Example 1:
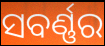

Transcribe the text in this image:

ସବର୍ଣ୍ଣର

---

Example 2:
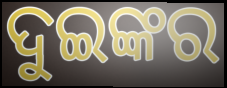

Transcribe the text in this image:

ଦୁଇଙ୍କର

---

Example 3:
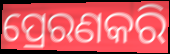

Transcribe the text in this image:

ପ୍ରେରଣକରି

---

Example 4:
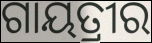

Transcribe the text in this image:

ଗାୟତ୍ରୀର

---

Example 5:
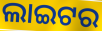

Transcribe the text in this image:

ଲାଇଟର